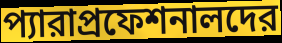
প্যারাপ্রফেশনালদের